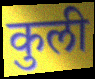
कुली